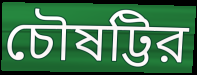
চৌষট্টির